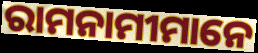
ରାମନାମୀମାନେ